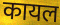
कायल